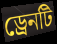
ড্রেনটি